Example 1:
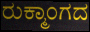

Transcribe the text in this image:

ರುಕ್ಮಾಂಗದ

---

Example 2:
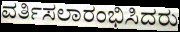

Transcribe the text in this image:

ವರ್ತಿಸಲಾರಂಭಿಸಿದರು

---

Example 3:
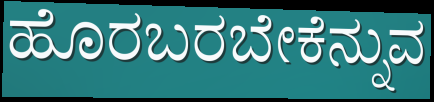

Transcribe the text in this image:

ಹೊರಬರಬೇಕೆನ್ನುವ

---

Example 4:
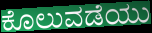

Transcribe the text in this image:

ಕೊಲುವಡೆಯು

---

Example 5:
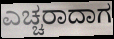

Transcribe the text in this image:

ಎಚ್ಚರಾದಾಗ